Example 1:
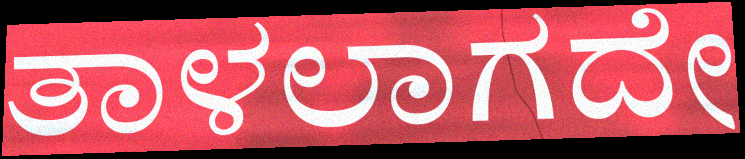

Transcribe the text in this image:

ತಾಳಲಾಗದೇ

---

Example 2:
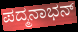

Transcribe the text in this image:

ಪದ್ಮನಾಭನ್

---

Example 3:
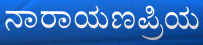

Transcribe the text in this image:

ನಾರಾಯಣಪ್ರಿಯ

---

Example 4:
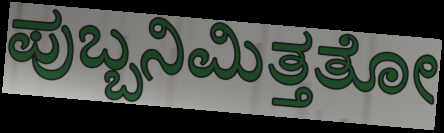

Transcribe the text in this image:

ಪುಬ್ಬನಿಮಿತ್ತತೋ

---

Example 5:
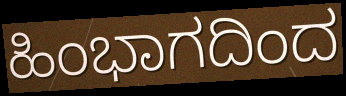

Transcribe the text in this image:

ಹಿಂಭಾಗದಿಂದ